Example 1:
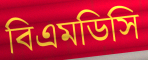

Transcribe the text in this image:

বিএমডিসি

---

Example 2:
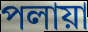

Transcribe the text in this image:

পলায়া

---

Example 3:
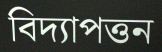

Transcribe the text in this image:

বিদ্যাপত্তন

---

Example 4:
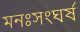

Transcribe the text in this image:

মনঃসংঘর্ষ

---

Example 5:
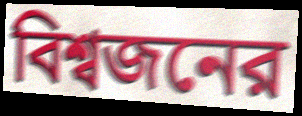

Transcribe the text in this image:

বিশ্বজনের